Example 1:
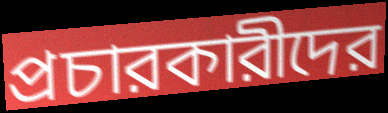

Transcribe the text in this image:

প্রচারকারীদের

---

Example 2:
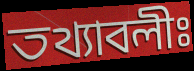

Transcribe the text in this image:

তথ্যাবলীঃ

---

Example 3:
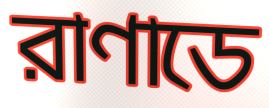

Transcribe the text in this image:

রাণাডে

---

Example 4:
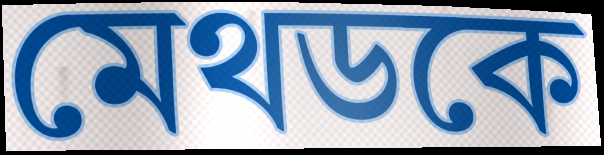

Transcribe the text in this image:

মেথডকে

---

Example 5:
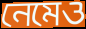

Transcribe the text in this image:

নেমেও